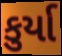
કુર્યા